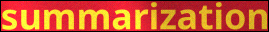
summarization